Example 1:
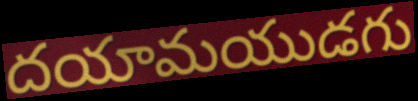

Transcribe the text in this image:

దయామయుడగు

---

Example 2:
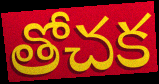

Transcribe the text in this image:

తోచక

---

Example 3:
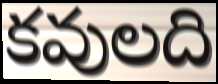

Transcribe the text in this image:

కవులది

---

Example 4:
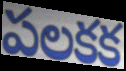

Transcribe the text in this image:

పలకక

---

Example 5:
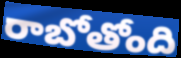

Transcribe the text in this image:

రాబోతోంది